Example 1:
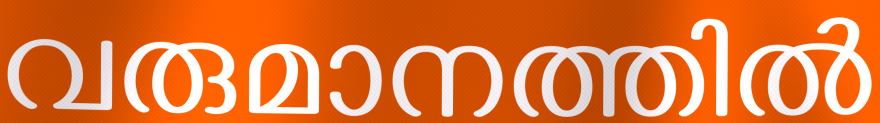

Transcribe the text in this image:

വരുമാനത്തിൽ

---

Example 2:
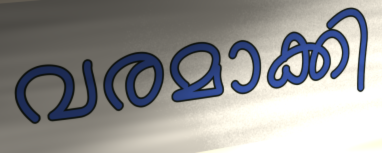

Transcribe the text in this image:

വരമാക്കി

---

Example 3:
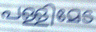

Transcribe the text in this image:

പള്ളിമേട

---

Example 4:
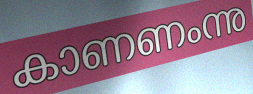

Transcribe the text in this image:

കാണണംന്നു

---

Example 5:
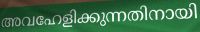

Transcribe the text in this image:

അവഹേളിക്കുന്നതിനായി